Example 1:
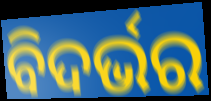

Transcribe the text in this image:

ବିଦର୍ଭର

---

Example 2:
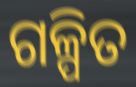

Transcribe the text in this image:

ଗଳ୍ପିତ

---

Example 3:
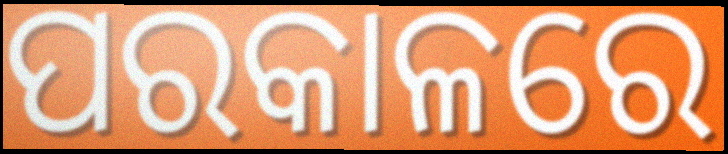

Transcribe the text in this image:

ପରକାଳରେ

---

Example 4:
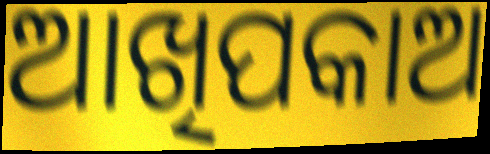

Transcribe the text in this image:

ଆଖିପକାଅ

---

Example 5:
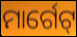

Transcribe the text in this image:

ମାର୍ଗେଟ୍